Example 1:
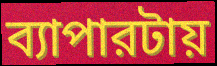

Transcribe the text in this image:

ব্যাপারটায়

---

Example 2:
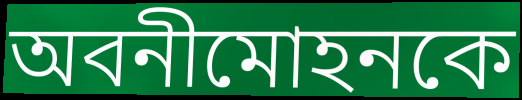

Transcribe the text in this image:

অবনীমোহনকে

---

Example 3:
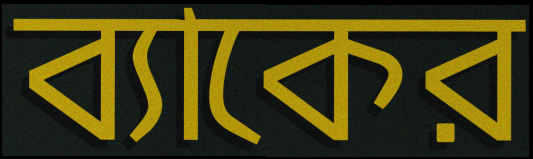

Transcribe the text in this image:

ব্যাকের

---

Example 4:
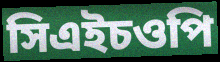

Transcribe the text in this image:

সিএইচওপি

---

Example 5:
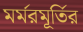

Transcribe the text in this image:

মর্মরমূর্তির